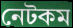
নেটকম